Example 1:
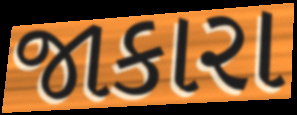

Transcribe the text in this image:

જાકારા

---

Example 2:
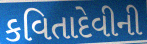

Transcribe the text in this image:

કવિતાદેવીની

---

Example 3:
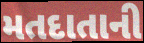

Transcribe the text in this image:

મતદાતાની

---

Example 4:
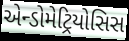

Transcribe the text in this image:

એન્ડોમેટ્રિયોસિસ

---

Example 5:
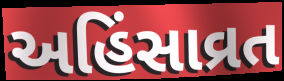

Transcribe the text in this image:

અહિંસાવ્રત